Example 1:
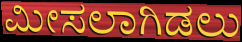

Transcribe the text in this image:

ಮೀಸಲಾಗಿಡಲು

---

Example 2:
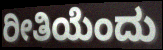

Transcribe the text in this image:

ರೀತಿಯೆಂದು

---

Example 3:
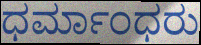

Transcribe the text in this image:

ಧರ್ಮಾಂಧರು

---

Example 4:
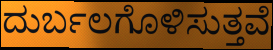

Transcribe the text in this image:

ದುರ್ಬಲಗೊಳಿಸುತ್ತವೆ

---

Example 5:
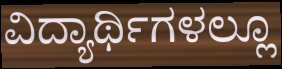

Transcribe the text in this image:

ವಿದ್ಯಾರ್ಥಿಗಳಲ್ಲೂ